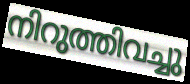
നിറുത്തിവച്ചു